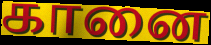
கானை